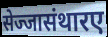
सेज्जासंथारए